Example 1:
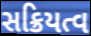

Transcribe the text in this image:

સક્રિયત્વ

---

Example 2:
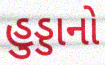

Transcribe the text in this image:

હુડ્ડાનો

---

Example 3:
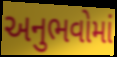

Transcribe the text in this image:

અનુભવોમાં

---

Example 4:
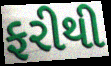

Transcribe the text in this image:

ફરીથી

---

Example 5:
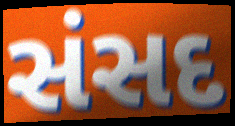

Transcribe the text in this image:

સંસદ